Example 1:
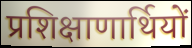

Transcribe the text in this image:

प्रशिक्षाणार्थियों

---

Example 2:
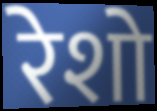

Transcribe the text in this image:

रेशो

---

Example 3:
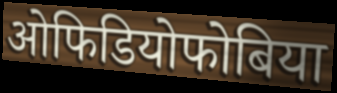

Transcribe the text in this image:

ओफिडियोफोबिया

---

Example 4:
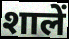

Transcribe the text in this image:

शालें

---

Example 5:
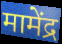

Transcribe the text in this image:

मामेंद्र